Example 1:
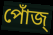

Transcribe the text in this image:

পোঁজ্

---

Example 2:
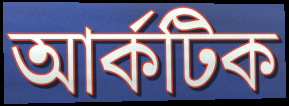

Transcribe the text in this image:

আর্কটিক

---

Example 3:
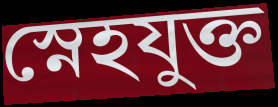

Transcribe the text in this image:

স্নেহযুক্ত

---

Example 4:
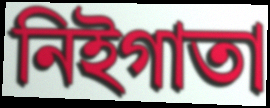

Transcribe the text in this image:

নিইগাতা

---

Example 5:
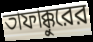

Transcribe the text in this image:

তাফাক্কুরের